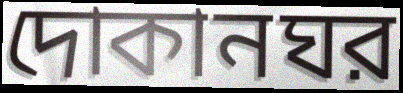
দোকানঘর